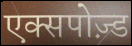
एक्सपोज़्ड